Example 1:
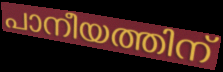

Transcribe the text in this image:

പാനീയത്തിന്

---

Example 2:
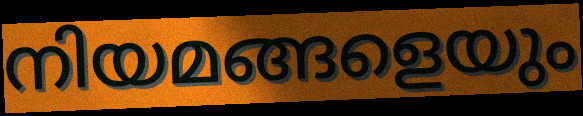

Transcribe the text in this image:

നിയമങ്ങളെയും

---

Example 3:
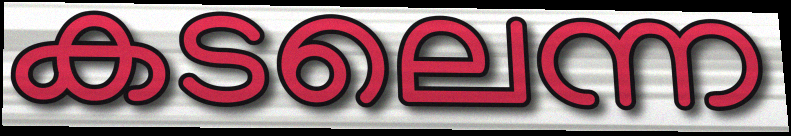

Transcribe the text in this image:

കടലെന്ന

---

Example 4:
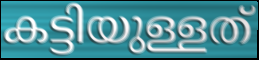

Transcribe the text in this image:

കട്ടിയുള്ളത്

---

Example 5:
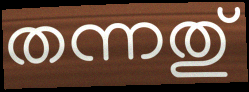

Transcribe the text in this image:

തന്നതു്